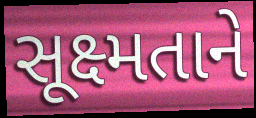
સૂક્ષ્મતાને